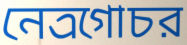
নেত্রগোচর